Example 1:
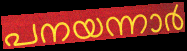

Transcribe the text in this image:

പനയന്നാർ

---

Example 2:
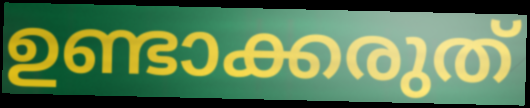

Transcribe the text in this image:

ഉണ്ടാക്കരുത്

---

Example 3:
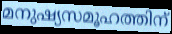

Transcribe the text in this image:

മനുഷ്യസമൂഹത്തിന്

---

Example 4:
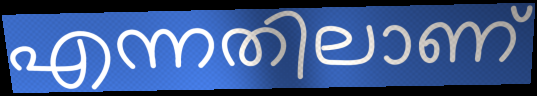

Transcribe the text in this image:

എന്നതിലാണ്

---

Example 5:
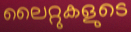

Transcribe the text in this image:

ലൈറ്റുകളുടെ